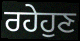
ਰਹੇਹੁਣ